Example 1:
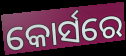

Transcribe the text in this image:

କୋର୍ସରେ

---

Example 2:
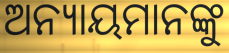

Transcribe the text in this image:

ଅନ୍ୟାୟମାନଙ୍କୁ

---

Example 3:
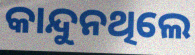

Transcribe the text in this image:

କାନ୍ଦୁନଥିଲେ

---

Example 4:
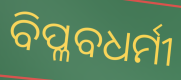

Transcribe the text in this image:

ବିପ୍ଳବଧର୍ମୀ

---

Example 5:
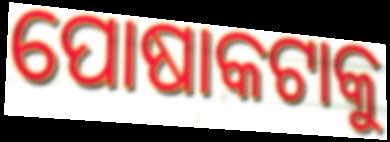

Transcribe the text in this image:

ପୋଷାକଟାକୁ